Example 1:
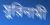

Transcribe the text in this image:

সুরিনামী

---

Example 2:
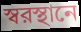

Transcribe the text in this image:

স্বরস্থানে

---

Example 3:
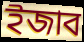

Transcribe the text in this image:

ইজাব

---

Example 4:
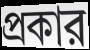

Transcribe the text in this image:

প্রকার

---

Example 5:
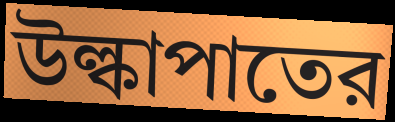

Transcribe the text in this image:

উল্কাপাতের